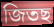
জিতছ